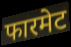
फारमेट